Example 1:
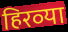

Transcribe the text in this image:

हिरव्‍या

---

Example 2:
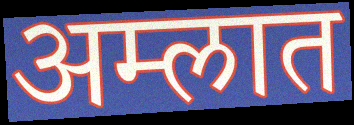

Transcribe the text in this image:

अम्लात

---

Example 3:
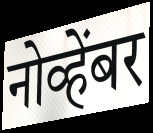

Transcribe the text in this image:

नोव्हेंबर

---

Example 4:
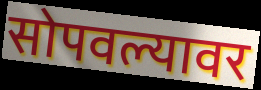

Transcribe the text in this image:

सोपवल्यावर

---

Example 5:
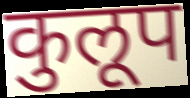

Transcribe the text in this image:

कुलूप